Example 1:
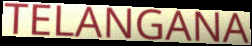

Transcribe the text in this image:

TELANGANA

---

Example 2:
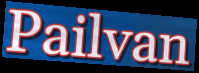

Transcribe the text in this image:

Pailvan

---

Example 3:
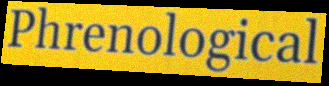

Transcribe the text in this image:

Phrenological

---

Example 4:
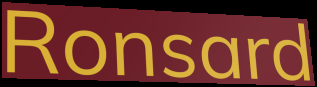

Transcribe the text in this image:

Ronsard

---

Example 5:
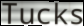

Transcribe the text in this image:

Tucks